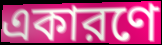
একারণে